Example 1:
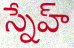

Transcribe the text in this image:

స్నేహ్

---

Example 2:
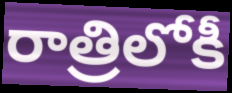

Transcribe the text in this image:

రాత్రిలోకీ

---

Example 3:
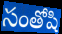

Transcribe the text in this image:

సంతోషి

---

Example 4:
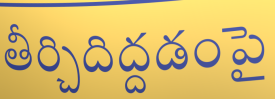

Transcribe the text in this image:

తీర్చిదిద్దడంపై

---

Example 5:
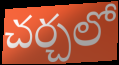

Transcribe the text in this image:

చర్చలో